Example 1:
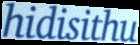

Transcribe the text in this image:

hidisithu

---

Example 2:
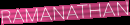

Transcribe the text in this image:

RAMANATHAN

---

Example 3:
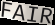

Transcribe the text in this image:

FAIR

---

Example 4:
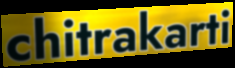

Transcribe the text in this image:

chitrakarti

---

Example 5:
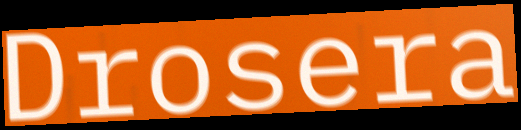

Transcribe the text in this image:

Drosera